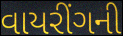
વાયરીંગની